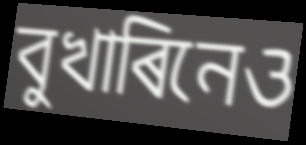
বুখাৰিনেও